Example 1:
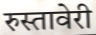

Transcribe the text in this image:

रुस्तावेरी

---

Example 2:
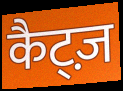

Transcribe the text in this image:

कैट्ज़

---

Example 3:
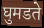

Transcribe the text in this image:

घुमडते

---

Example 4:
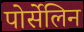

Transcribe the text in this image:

पोर्सेलिन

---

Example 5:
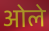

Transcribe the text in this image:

ओले